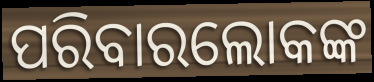
ପରିବାରଲୋକଙ୍କ